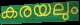
കരയലും